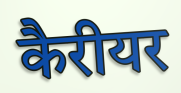
कैरीयर